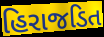
હિરાજડિત